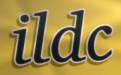
ildc